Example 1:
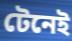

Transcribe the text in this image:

টেনেই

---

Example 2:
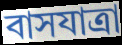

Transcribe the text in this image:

বাসযাত্রা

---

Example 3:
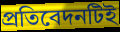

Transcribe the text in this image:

প্রতিবেদনটিই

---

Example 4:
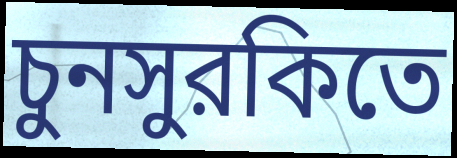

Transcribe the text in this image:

চুনসুরকিতে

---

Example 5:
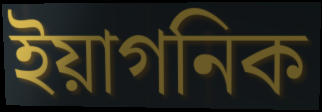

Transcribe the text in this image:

ইয়াগনিক